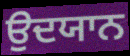
ਉਦਯਾਨ